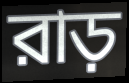
রাড়